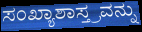
ಸಂಖ್ಯಾಶಾಸ್ತ್ರವನ್ನು